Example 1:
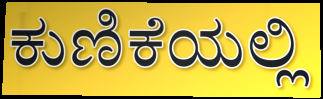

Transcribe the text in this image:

ಕುಣಿಕೆಯಲ್ಲಿ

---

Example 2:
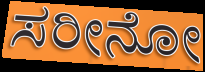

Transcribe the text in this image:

ಸರೀನೋ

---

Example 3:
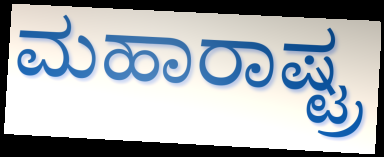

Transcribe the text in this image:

ಮಹಾರಾಷ್ಟ್ರ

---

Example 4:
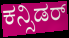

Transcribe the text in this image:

ಕನ್ಸಿಡರ್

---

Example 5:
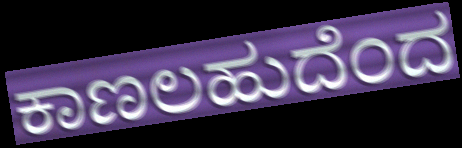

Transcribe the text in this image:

ಕಾಣಲಹುದೆಂದ